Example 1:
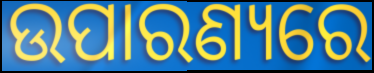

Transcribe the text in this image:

ଉପାରଣ୍ୟରେ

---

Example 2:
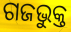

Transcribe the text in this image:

ଗଜଭୁକ୍ତ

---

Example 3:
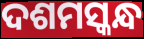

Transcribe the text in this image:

ଦଶମସ୍କନ୍ଧ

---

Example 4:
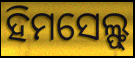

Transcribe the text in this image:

ହିମସେଲ୍ଫ୍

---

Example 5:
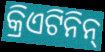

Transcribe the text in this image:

କ୍ରିଏଟିନିନ୍